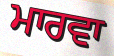
ਮਾਰਵਾ